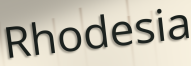
Rhodesia